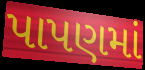
પાપણમાં